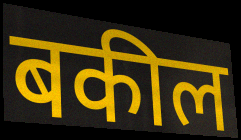
बकील